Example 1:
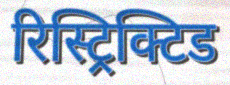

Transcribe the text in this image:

रिस्ट्रिक्टिड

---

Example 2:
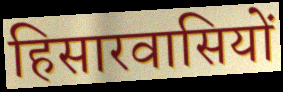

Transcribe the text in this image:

हिसारवासियों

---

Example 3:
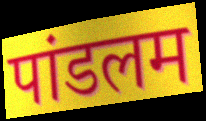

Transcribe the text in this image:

पांडलम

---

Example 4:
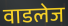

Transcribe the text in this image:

वाडलेज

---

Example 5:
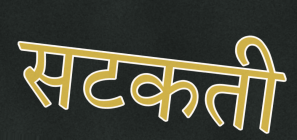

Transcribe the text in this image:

सटकती